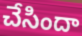
చేసిందా